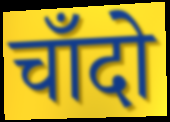
चाँदो